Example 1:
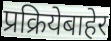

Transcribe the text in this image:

प्रक्रियेबाहेर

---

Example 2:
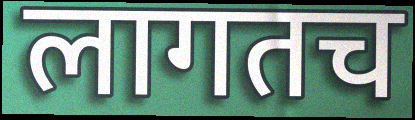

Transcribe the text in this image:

लागतच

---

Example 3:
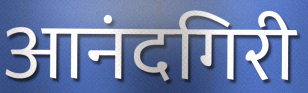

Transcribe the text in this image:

आनंदगिरी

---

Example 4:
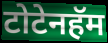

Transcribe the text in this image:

टोटेनहॅम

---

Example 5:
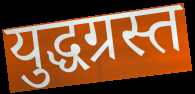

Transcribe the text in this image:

युद्धग्रस्त